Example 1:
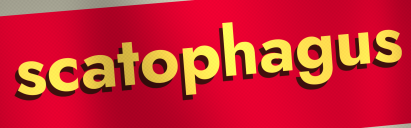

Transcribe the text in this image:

scatophagus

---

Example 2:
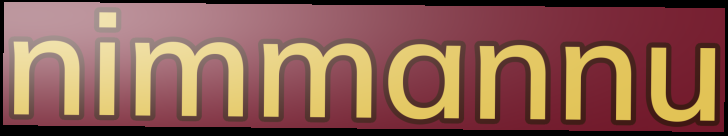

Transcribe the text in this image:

nimmannu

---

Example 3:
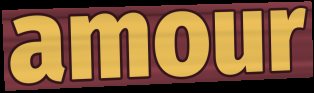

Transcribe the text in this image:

amour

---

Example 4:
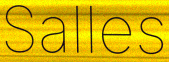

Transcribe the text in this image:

Salles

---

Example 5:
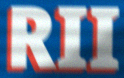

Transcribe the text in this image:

RII